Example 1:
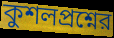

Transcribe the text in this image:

কুশলপ্রশ্নের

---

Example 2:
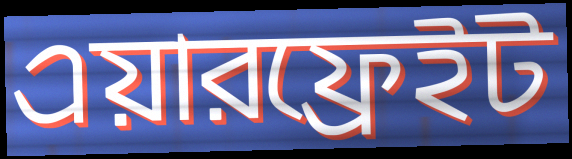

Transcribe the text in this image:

এয়ারফ্রেইট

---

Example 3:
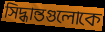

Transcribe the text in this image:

সিদ্ধান্তগুলোকে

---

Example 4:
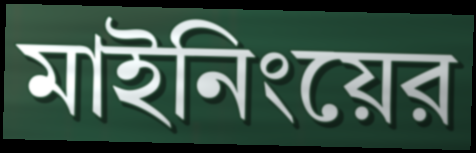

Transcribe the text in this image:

মাইনিংয়ের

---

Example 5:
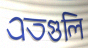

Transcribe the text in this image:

এতগুলি